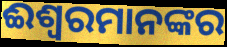
ଈଶ୍ୱରମାନଙ୍କର